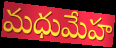
మధుమేహ